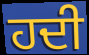
ਹਦੀ